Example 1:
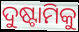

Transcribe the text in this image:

ଦୁଷ୍ଟାମିକୁ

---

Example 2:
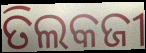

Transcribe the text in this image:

ତିଲକଜୀ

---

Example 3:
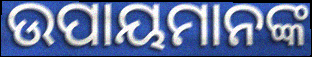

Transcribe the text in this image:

ଉପାୟମାନଙ୍କ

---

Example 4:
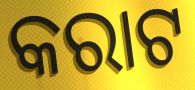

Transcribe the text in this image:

କରାଟ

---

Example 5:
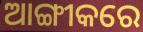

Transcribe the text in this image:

ଆଙ୍ଗୀକରେ